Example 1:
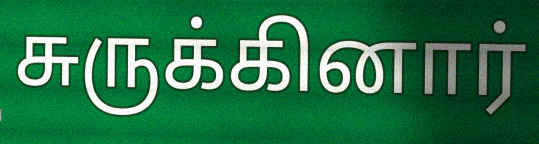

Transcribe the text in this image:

சுருக்கினார்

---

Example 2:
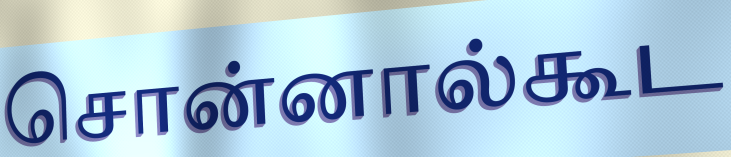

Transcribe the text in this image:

சொன்னால்கூட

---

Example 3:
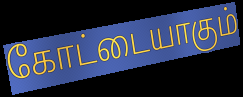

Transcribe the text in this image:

கோட்டையாகும்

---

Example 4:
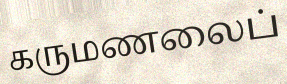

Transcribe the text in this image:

கருமணலைப்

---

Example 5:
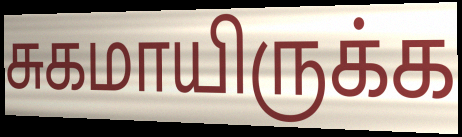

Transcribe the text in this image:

சுகமாயிருக்க